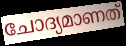
ചോദ്യമാണത്